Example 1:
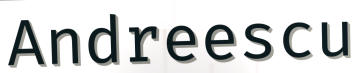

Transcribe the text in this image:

Andreescu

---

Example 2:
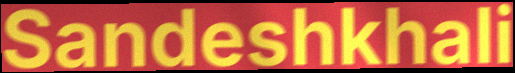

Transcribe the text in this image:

Sandeshkhali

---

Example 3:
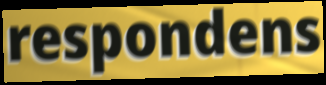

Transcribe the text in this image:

respondens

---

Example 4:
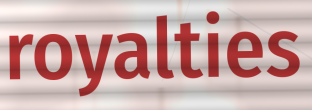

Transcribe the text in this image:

royalties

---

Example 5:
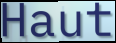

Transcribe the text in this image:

Haut